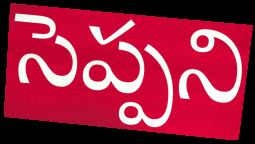
సెప్పని